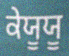
ਕੇਯੂਯੂ